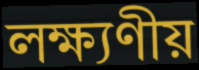
লক্ষ্যণীয়